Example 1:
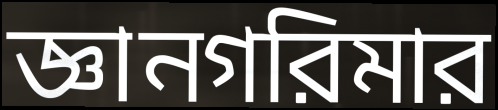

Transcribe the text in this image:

জ্ঞানগরিমার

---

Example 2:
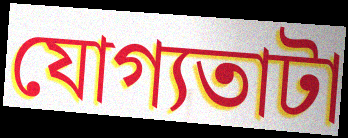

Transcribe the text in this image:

যোগ্যতাটা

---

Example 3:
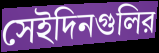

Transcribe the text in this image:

সেইদিনগুলির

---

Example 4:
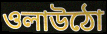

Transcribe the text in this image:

ওলাউঠো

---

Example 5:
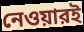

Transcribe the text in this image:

নেওয়ারই